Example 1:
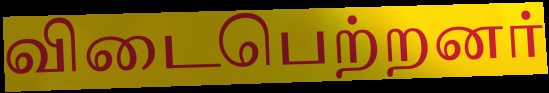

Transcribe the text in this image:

விடைபெற்றனர்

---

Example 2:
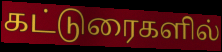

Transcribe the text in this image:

கட்டுரைகளில்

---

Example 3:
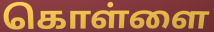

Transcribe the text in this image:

கொள்ளை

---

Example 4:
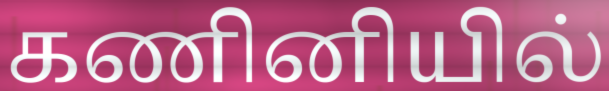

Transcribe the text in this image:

கணினியில்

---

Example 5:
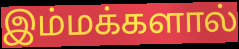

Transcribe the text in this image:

இம்மக்களால்